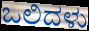
ಒಲಿದಳು